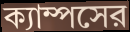
ক্যাম্পসের